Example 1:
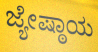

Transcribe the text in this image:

ಜ್ಯೇಷ್ಠಾಯ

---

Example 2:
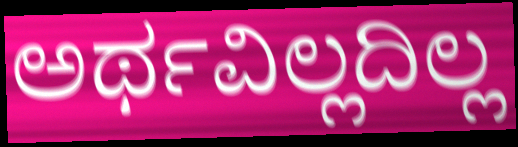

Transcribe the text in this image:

ಅರ್ಥವಿಲ್ಲದಿಲ್ಲ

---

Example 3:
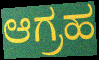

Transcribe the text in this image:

ಆಗ್ರಹ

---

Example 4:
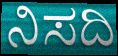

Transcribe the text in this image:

ನಿಸದಿ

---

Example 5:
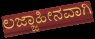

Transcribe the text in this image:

ಲಜ್ಜಾಹೀನವಾಗಿ